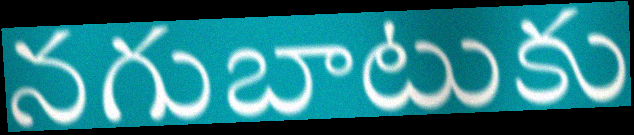
నగుబాటుకు